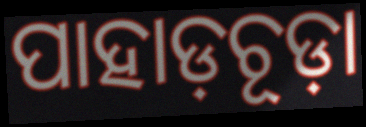
ପାହାଡ଼ଚୂଡ଼ା